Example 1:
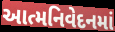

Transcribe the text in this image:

આત્મનિવેદનમાં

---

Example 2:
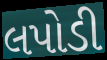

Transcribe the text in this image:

લપોડી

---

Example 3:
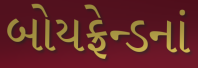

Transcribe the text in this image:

બોયફ્રેન્ડનાં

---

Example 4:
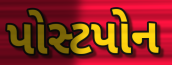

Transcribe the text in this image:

પોસ્ટપોન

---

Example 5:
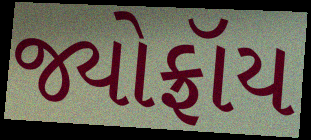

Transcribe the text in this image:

જ્યોફ્રૉય